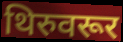
थिरुवरूर